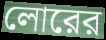
লোরের